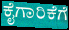
ಕೈಗಾರಿಕೆಗೆ